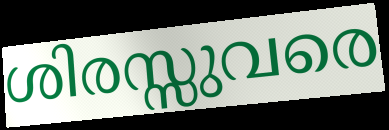
ശിരസ്സുവരെ